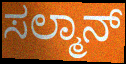
ಸಲ್ಮಾನ್